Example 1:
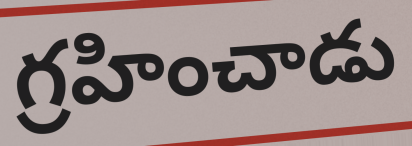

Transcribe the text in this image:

గ్రహించాడు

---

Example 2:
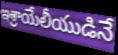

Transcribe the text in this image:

ఇశ్రాయేలీయుడినే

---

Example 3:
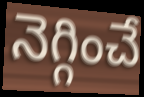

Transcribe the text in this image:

నెగ్గించే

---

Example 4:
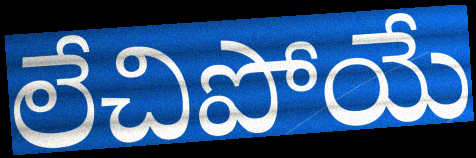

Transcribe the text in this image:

లేచిపోయే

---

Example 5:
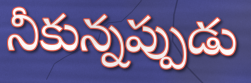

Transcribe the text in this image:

నీకున్నప్పుడు